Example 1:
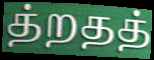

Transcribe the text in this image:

த்றதத்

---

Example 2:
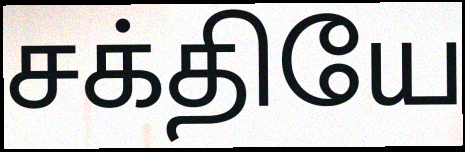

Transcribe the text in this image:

சக்தியே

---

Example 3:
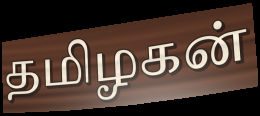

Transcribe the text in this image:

தமிழகன்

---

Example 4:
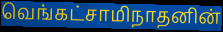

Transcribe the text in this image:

வெங்கட்சாமிநாதனின்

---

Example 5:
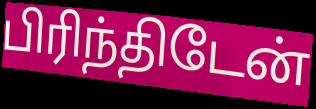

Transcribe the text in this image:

பிரிந்திடேன்